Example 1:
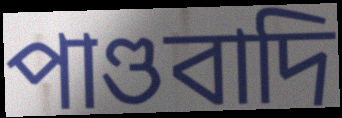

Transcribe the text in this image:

পাণ্ডবাদি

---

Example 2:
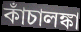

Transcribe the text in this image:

কাঁচালঙ্কা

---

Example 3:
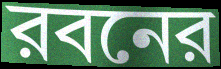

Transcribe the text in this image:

রবনের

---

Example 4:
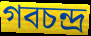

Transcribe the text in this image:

গবচন্দ্র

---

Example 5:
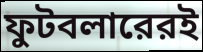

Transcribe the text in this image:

ফুটবলারেরই